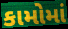
કામોમાં